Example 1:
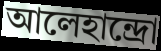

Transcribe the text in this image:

আলেহান্দ্রো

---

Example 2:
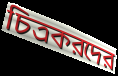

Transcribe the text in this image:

চিত্রকরদের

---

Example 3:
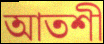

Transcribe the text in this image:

আতশী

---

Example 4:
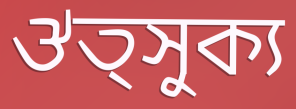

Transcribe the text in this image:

ঔত্সুক্য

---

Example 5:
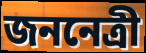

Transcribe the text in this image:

জননেত্রী